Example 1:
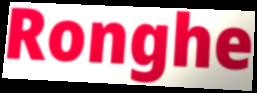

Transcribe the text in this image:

Ronghe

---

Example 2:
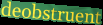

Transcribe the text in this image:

deobstruent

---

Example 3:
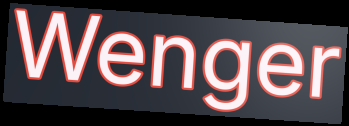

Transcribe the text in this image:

Wenger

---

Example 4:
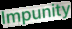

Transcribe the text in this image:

Impunity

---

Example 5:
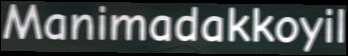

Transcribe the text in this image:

Manimadakkoyil